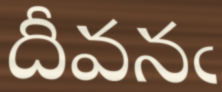
దీవనఁ